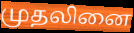
முதலினை